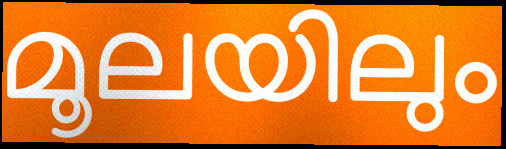
മൂലയിലും